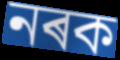
নৰক